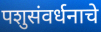
पशुसंवर्धनाचे